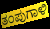
ತಂಪುಗಾಳಿ